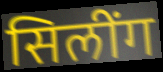
सिलींग